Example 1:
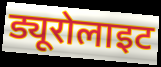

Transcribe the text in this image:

ड्यूरोलाइट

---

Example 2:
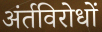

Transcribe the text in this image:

अंर्तविरोधों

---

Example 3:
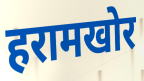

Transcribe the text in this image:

हरामखोर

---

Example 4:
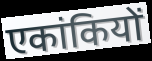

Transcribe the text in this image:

एकांकियों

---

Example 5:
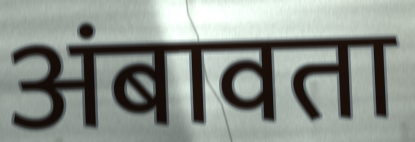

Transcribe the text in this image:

अंबावता